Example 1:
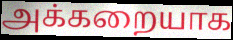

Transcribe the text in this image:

அக்கறையாக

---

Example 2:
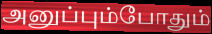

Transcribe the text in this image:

அனுப்பும்போதும்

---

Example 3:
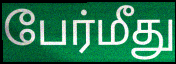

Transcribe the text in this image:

பேர்மீது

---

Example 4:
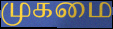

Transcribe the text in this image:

முகமை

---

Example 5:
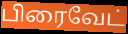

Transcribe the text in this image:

பிரைவேட்